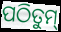
ପଠିତୁମ୍